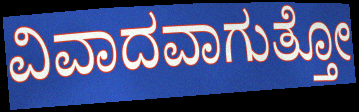
ವಿವಾದವಾಗುತ್ತೋ